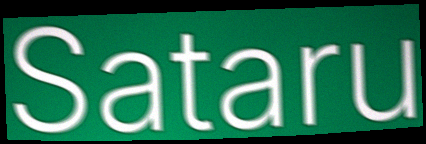
Sataru